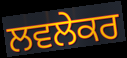
ਲਵਲੇਕਰ